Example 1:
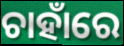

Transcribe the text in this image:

ଚାହାଁରେ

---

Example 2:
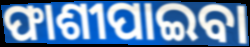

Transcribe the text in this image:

ଫାଶୀପାଇବା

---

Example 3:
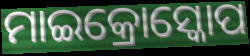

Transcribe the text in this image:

ମାଇକ୍ରୋସ୍କୋପ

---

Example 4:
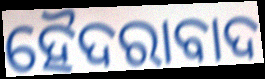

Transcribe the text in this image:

ହୈଦରାବାଦ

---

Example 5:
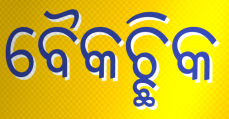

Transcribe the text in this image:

ବୈକଚ୍ଛିକ